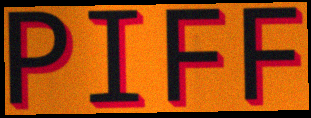
PIFF